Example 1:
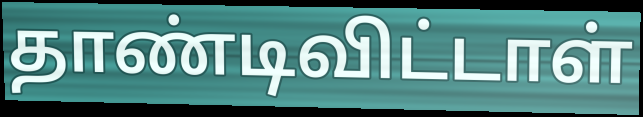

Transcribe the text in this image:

தாண்டிவிட்டாள்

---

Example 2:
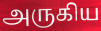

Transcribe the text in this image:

அருகிய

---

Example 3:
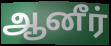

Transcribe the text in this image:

ஆனீர்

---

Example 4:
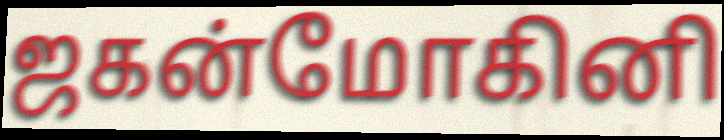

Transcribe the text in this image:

ஜகன்மோகினி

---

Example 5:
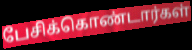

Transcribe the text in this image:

பேசிக்கொண்டார்கள்